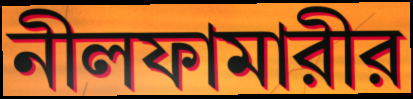
নীলফামারীর